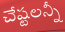
చేష్టలన్నీ